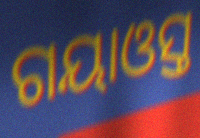
ଗୟାଓସ୍ତ